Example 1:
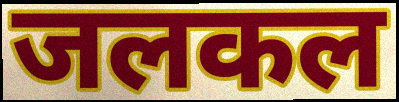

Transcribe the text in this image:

जलकल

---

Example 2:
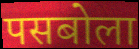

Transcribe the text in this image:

पसबोला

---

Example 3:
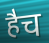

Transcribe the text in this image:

हैच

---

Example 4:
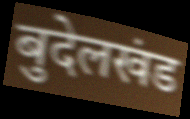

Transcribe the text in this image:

बुदेलखंड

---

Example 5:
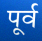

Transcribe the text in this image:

पूर्व